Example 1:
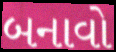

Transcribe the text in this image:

બનાવો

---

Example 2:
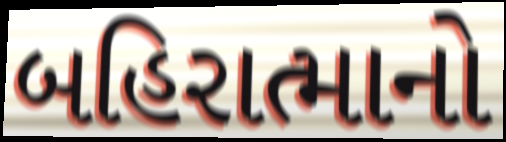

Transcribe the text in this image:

બહિરાત્માનો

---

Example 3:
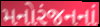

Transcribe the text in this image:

મનોરંજનનાં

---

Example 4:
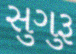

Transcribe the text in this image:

સુગુરૂ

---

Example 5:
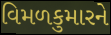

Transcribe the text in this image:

વિમળકુમારને